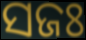
ସଜଃ